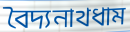
বৈদ্যনাথধাম